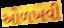
ઓળખવી